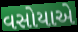
વસોયાએ